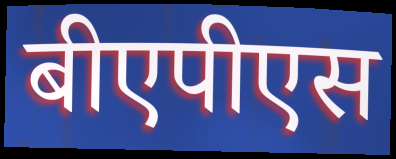
बीएपीएस